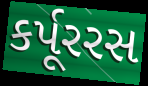
કર્પૂરરસ